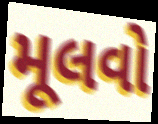
મૂલવો